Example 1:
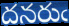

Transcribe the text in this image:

దనరుఁ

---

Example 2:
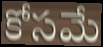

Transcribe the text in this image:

కోసమే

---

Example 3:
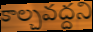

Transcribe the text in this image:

కాల్చవద్దని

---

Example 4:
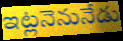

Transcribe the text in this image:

ఇట్లనెనునేడు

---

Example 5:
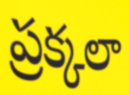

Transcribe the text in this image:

ప్రక్కలా